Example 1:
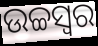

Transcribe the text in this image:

ଉଚ୍ଚସ୍ଵର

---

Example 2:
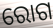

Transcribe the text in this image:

ରୋଗ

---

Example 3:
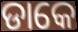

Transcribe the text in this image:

ଡାକେ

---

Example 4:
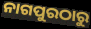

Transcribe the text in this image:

ନାଗପୁରଠାରୁ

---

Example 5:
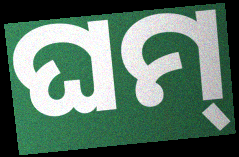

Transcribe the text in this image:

ଘମ୍